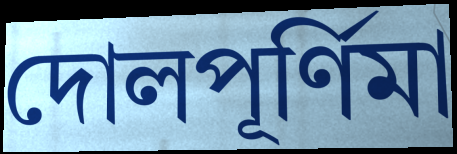
দোলপূর্ণিমা